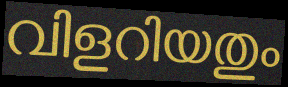
വിളറിയതും